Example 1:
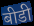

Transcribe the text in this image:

बीडी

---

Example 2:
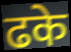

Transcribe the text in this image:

ढके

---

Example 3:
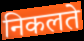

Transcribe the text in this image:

निकलते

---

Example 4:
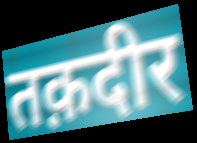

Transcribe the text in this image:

तक़दीर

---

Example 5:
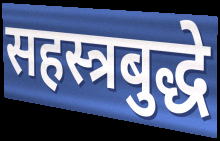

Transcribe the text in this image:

सहस्त्रबुद्धे